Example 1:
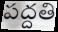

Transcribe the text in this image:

పద్దతి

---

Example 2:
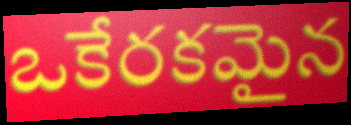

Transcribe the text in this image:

ఒకేరకమైన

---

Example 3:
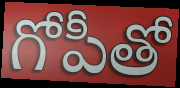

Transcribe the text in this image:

గోపీతో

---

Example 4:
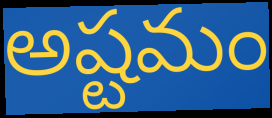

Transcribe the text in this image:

అష్టమం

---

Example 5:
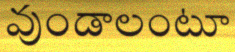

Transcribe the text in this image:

వుండాలంటూ